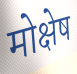
मोक्षेष